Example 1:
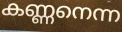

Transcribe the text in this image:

കണ്ണനെന്ന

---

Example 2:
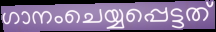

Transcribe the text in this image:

ഗാനംചെയ്യപ്പെട്ടത്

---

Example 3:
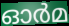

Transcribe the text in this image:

ഓർമ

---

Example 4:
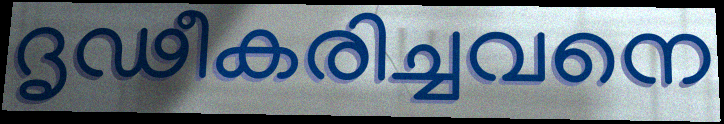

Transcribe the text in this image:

ദൃഢീകരിച്ചവനെ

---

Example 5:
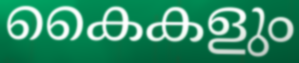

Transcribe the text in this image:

കൈകളും